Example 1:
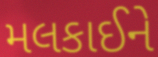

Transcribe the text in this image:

મલકાઈને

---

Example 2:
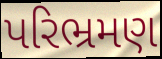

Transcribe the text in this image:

પરિભ્રમણ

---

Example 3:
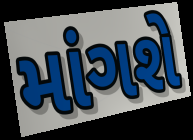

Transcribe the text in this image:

માંગશે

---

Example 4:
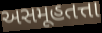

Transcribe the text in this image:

અસમૂહતત્તા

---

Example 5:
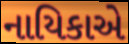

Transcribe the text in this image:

નાયિકાએ